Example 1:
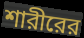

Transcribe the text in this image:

শারীরের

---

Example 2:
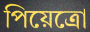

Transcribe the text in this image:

পিয়েত্রো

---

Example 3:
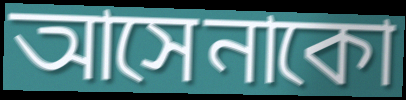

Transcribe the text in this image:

আসেনাকো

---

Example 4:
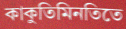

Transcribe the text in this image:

কাকুতিমিনতিতে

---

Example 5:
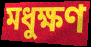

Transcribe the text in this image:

মধুক্ষণ